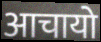
आचायो